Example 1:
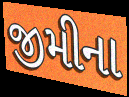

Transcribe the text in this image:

જીમીના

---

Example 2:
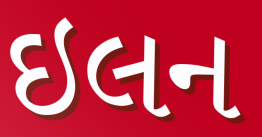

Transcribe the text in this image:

ઇલન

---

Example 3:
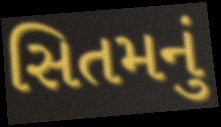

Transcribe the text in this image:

સિતમનું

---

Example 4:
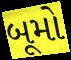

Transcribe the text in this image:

બૂમો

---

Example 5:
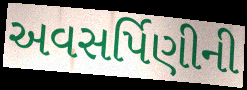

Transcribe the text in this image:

અવસર્પિણીની